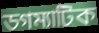
ডগম্যাটিক